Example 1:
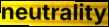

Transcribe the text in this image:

neutrality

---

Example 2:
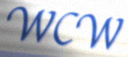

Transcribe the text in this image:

WCW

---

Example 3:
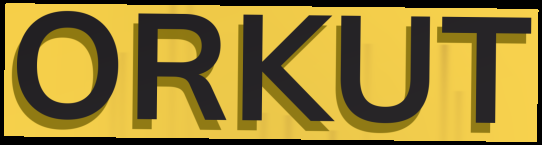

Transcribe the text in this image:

ORKUT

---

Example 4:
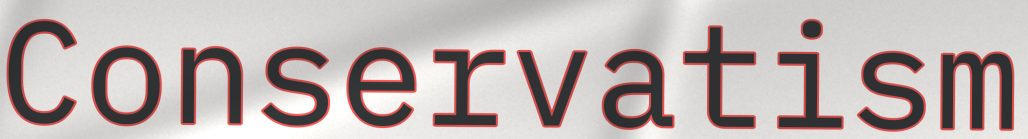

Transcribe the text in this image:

Conservatism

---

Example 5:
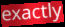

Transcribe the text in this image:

exactly